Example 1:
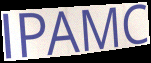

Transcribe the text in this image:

IPAMC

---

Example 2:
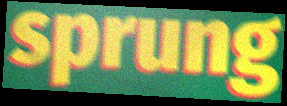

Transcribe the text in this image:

sprung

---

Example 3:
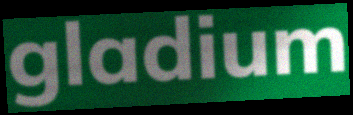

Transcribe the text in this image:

gladium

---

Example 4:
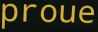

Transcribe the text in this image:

proue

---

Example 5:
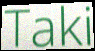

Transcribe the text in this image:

Taki